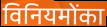
विनियमोंका